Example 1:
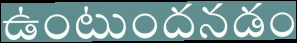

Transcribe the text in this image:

ఉంటుందనడం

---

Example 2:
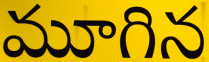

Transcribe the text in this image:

మూగిన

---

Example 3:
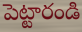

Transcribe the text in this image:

పెట్టారండి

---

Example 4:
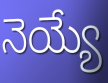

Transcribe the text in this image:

నెయ్యే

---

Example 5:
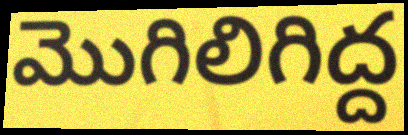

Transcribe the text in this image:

మొగిలిగిద్ద